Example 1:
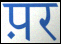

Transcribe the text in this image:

प़र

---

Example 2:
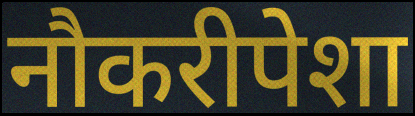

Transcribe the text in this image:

नौकरीपेशा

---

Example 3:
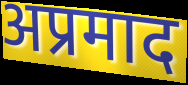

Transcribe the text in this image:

अप्रमाद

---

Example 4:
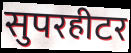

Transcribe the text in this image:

सुपरहीटर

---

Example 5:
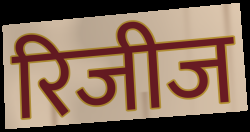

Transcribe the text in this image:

रिजीज